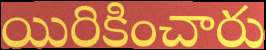
యిరికించారు